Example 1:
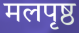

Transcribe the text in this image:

मलपृष्ठ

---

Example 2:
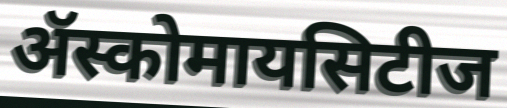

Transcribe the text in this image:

ॲस्कोमायसिटीज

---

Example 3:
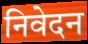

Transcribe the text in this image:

निवेदन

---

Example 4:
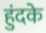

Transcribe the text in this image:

हुंदके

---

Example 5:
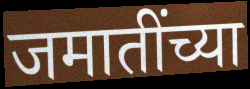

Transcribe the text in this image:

जमातींच्या